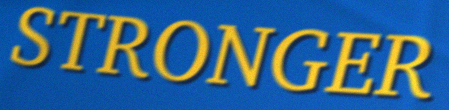
STRONGER